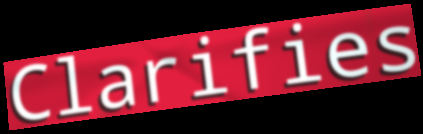
Clarifies